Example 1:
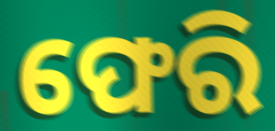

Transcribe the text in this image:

ଫେରି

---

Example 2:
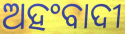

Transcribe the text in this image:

ଅହଂବାଦୀ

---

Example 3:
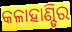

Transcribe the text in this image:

କଳାହାଣ୍ଡିର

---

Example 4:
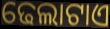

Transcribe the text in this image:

ଢେଲାଟାଏ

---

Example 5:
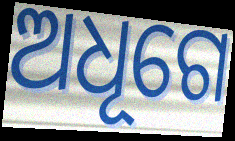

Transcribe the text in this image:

ଅଧୂଗେ